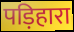
पड़िहारा